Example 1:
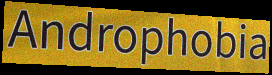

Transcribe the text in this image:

Androphobia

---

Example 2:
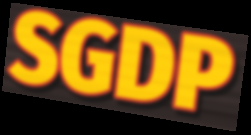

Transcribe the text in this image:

SGDP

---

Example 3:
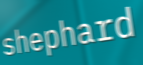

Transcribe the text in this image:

shephard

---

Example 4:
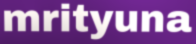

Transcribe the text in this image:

mrityuna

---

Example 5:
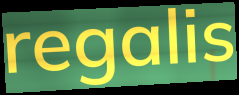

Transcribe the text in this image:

regalis